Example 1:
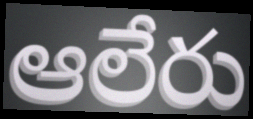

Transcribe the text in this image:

ఆలేరు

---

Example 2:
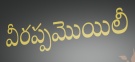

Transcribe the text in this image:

వీరప్పమొయిలీ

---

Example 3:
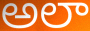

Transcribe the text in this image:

అలా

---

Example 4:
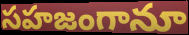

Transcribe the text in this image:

సహజంగానూ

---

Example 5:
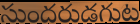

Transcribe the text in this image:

సుందరుడగుట